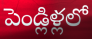
పెండ్లిళ్లలో